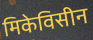
मिकेविसीन